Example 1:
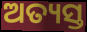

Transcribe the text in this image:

ଅତ୍ୟସ୍ତ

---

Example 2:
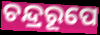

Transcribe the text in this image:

ଚନ୍ଦ୍ରରୂପେ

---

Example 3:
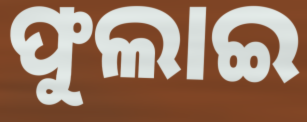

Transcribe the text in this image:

ଫୁଲାଇ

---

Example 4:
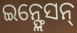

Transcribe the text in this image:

ଇନ୍ଫ୍ଲେସନ୍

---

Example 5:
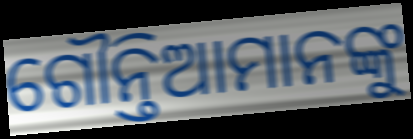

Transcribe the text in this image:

ଗୌନ୍ତିଆମାନଙ୍କୁ